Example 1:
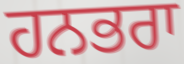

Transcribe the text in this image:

ਹਨਭਰਾ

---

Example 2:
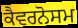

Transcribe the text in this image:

ਕੈਵਰਨੋਸਮ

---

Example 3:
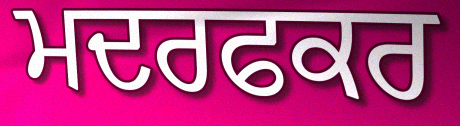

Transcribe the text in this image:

ਮਦਰਫਕਰ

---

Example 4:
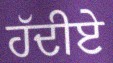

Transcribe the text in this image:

ਹੱਦੀਏ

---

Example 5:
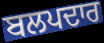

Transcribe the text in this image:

ਬਲਪਦਾਰ